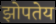
झोपतेय